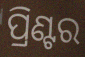
ପ୍ରିଣ୍ଟର